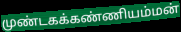
முண்டகக்கண்ணியம்மன்